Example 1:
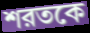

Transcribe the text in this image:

শরতকে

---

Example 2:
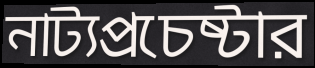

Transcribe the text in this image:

নাট্যপ্রচেষ্টার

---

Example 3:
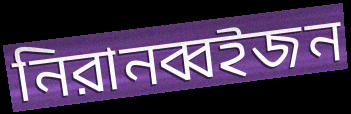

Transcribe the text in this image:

নিরানব্বইজন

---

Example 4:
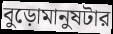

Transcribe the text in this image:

বুড়োমানুষটার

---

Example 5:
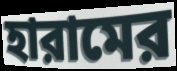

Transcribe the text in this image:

হারামের